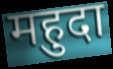
महुदा